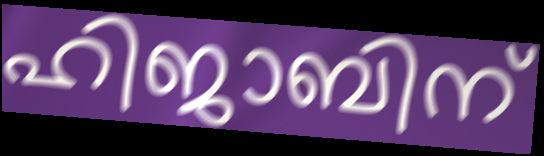
ഹിജാബിന്